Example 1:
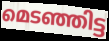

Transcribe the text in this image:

മെടഞ്ഞിട്ട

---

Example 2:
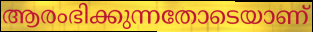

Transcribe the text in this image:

ആരംഭിക്കുന്നതോടെയാണ്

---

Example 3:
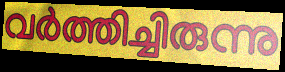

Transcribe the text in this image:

വർത്തിച്ചിരുന്നു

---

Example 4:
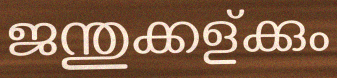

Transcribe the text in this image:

ജന്തുക്കള്ക്കും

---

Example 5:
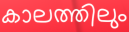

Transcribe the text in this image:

കാലത്തിലും